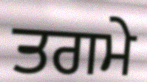
ਤਗਮੇ